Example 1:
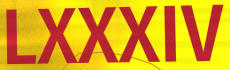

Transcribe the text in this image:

LXXXIV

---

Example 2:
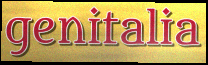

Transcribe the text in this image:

genitalia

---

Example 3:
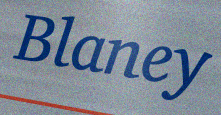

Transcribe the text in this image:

Blaney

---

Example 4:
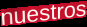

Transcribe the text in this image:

nuestros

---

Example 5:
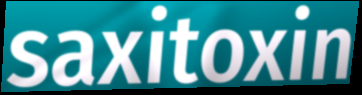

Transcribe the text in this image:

saxitoxin